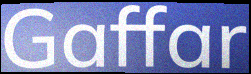
Gaffar